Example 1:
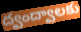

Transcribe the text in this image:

ద్వంద్వాలకు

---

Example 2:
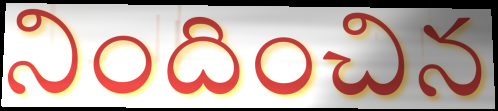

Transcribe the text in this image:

నిందించిన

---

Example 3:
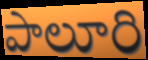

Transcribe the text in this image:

పాలూరి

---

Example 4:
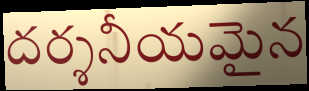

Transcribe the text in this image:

దర్శనీయమైన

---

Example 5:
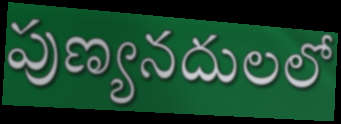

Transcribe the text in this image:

పుణ్యనదులలో